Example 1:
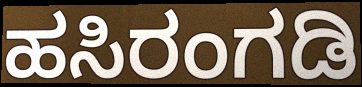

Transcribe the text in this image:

ಹಸಿರಂಗಡಿ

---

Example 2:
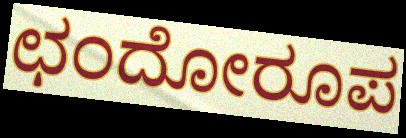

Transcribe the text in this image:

ಛಂದೋರೂಪ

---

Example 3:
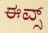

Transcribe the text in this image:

ಈವ್ಸ್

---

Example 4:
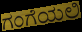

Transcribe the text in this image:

ಗಂಗೆಯಲಿ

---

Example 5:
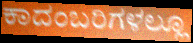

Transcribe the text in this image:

ಕಾದಂಬರಿಗಳಲ್ಲೂ